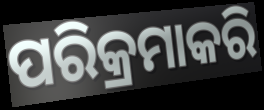
ପରିକ୍ରମାକରି